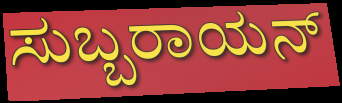
ಸುಬ್ಬರಾಯನ್